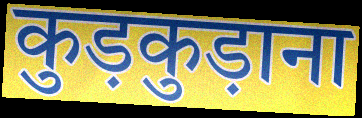
कुड़कुड़ाना